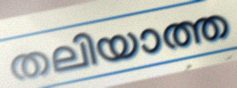
തലിയാത്ത